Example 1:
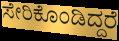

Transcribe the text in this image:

ಸೇರಿಕೊಂಡಿದ್ದರೆ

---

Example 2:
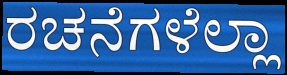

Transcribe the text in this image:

ರಚನೆಗಳೆಲ್ಲಾ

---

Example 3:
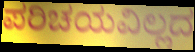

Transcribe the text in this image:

ಪರಿಚಯವಿಲ್ಲದ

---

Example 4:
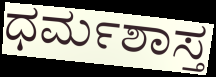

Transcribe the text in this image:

ಧರ್ಮಶಾಸ್ತ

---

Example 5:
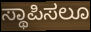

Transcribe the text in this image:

ಸ್ಥಾಪಿಸಲೂ